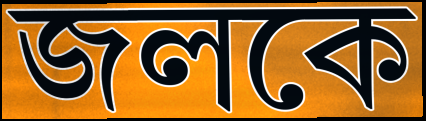
জলকে